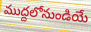
ముద్దలోనుండియే